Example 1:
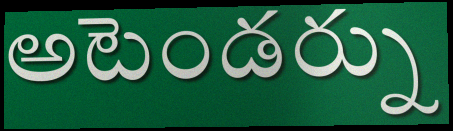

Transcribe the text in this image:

అటెండర్ను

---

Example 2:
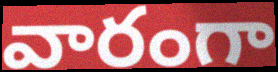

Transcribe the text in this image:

వారంగా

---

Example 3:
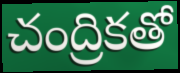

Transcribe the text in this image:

చంద్రికతో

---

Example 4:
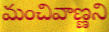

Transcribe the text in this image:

మంచివాణ్ణని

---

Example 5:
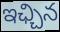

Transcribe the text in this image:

ఇఛ్చిన